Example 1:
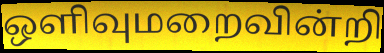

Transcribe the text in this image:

ஒளிவுமறைவின்றி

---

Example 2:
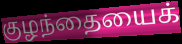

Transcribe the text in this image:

குழந்தையைக்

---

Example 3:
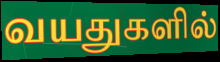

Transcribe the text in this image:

வயதுகளில்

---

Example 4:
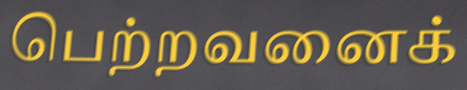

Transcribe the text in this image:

பெற்றவனைக்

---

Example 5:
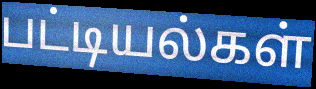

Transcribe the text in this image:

பட்டியல்கள்